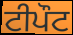
ਟੀਪੌਟ